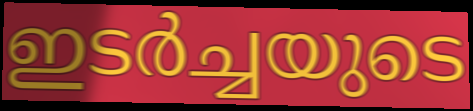
ഇടർച്ചയുടെ